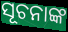
ସୂଚନାଙ୍କ